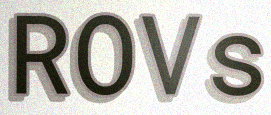
ROVs